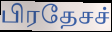
பிரதேசச்